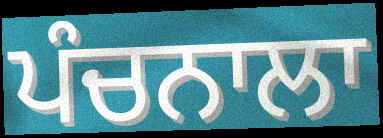
ਪੰਚਨਾਲਾ